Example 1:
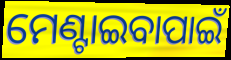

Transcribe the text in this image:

ମେଣ୍ଟାଇବାପାଇଁ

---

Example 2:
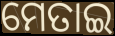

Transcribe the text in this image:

ମେତାଇ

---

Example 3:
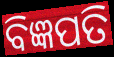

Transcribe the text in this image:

ବିଜ୍ଞପତି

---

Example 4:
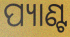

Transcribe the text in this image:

ପ୍ୟାଣ୍ଟ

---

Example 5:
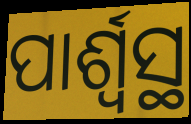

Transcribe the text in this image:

ପାର୍ଶ୍ବସ୍ଥ